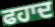
ਫਹਾਦ